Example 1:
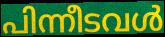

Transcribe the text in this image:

പിന്നീടവൾ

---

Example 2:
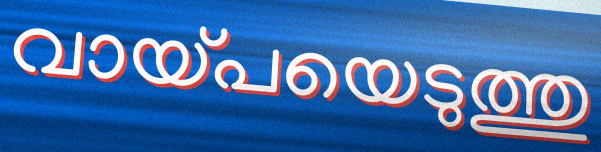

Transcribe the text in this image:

വായ്പയെടുത്തു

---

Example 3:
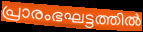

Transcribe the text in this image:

പ്രാരംഭഘട്ടത്തിൽ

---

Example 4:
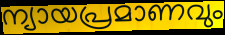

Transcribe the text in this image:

ന്യായപ്രമാണവും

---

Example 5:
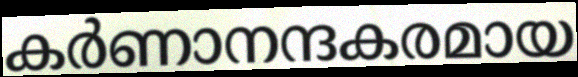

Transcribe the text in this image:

കർണാനന്ദകരമായ